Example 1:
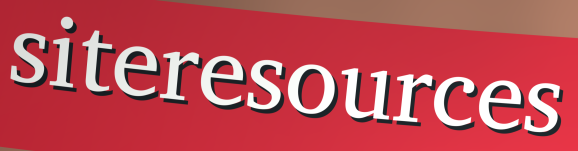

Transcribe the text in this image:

siteresources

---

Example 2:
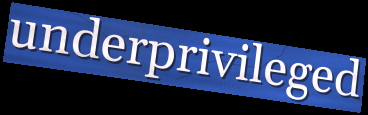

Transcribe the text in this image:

underprivileged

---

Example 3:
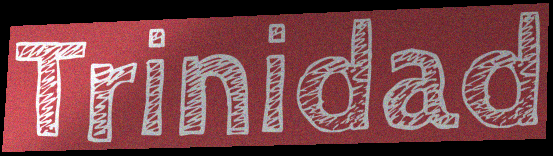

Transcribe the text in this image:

Trinidad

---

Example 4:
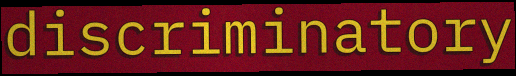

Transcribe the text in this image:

discriminatory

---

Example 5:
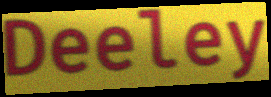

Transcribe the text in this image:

Deeley